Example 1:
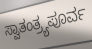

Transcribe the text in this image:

ಸ್ವಾತಂತ್ರ್ಯಪೂರ್ವ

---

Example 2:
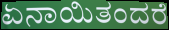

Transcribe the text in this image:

ಏನಾಯಿತಂದರೆ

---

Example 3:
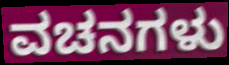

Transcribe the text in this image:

ವಚನಗಳು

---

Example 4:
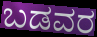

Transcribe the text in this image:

ಬಡವರ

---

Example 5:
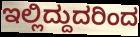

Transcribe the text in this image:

ಇಲ್ಲಿದ್ದುದರಿಂದ